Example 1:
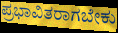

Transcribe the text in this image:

ಪ್ರಭಾವಿತರಾಗಬೇಕು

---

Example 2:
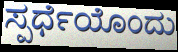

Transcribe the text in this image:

ಸ್ಪರ್ಧೆಯೊಂದು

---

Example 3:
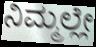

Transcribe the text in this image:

ನಿಮ್ಮಲ್ಲೇ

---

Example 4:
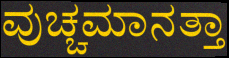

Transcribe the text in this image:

ವುಚ್ಚಮಾನತ್ತಾ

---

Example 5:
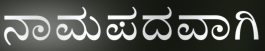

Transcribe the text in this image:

ನಾಮಪದವಾಗಿ